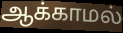
ஆக்காமல்